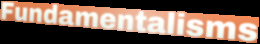
Fundamentalisms